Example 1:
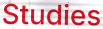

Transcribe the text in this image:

Studies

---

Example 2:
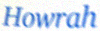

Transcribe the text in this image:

Howrah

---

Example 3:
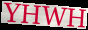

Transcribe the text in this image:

YHWH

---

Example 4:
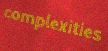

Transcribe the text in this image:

complexities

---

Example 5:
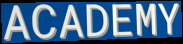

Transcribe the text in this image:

ACADEMY